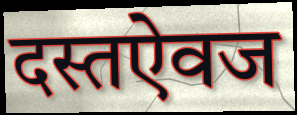
दस्तऐवज